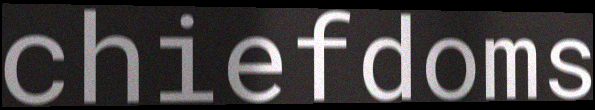
chiefdoms